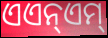
ଏଏନ୍ଏମ୍